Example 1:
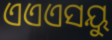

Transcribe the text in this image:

ଏଏଏସୟୁ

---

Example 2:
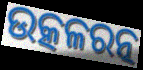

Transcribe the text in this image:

ଉତ୍କଳରତ୍ନ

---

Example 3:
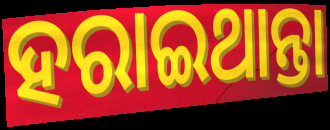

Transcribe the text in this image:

ହରାଇଥାନ୍ତା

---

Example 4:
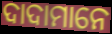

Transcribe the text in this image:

ଦାଦାମାନେ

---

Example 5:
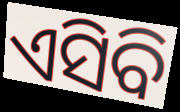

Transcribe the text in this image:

ଏସିବି